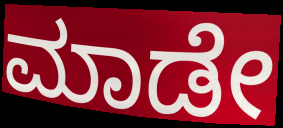
ಮಾಡೇ